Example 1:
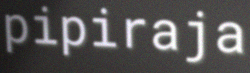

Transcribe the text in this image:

pipiraja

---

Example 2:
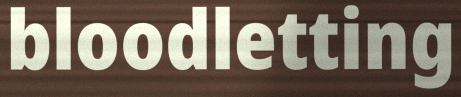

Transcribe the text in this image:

bloodletting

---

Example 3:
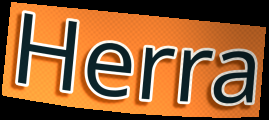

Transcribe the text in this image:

Herra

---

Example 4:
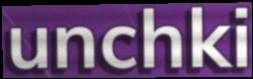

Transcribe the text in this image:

unchki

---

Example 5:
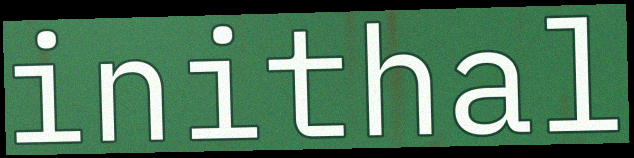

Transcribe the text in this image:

inithal